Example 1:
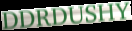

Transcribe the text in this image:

DDRDUSHY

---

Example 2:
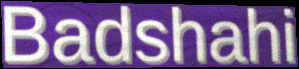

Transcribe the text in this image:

Badshahi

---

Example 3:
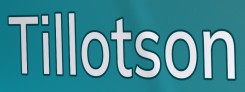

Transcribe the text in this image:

Tillotson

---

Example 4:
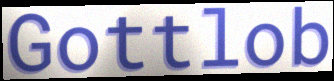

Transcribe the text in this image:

Gottlob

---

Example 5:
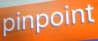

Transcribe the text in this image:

pinpoint